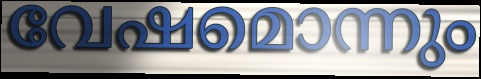
വേഷമൊന്നും